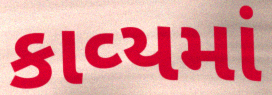
કાવ્‍યમાં